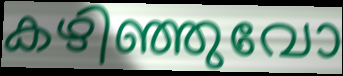
കഴിഞ്ഞുവോ